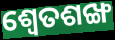
ଶ୍ୱେତଶଙ୍ଖ